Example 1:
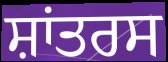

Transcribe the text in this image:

ਸ਼ਾਂਤਰਸ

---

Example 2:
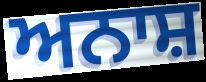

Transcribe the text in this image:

ਅਨਾਸ਼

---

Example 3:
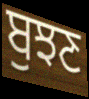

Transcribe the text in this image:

ਬੁਝਣ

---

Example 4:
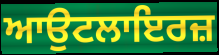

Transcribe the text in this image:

ਆਉਟਲਾਇਰਜ਼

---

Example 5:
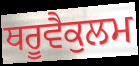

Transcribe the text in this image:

ਥਰੂਵੈਕੁਲਮ